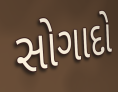
સોગાદો